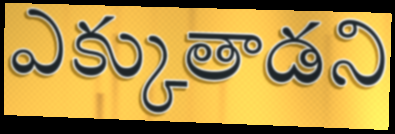
ఎక్కుతాడని